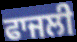
ਫਾਜਲੀ